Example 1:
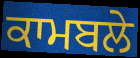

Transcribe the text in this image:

ਕਾਮਬਲੇ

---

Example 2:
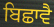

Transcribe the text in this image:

ਬਿਛਾਵੈ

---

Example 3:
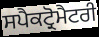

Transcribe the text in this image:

ਸਪੈਕਟ੍ਰੋਮੈਟਰੀ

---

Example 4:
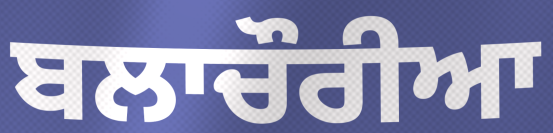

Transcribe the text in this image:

ਬਲਾਚੌਰੀਆ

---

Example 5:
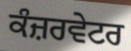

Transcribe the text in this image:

ਕੰਜ਼ਰਵੇਟਰ